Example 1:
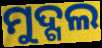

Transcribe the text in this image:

ମୁଦ୍ଗଲ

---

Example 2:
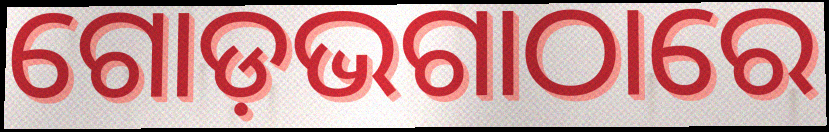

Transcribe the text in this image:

ଗୋଡ଼ଭଗାଠାରେ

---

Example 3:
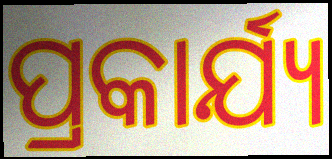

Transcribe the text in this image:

ପ୍ରକାର୍ଯ୍ୟ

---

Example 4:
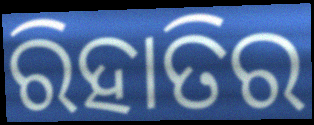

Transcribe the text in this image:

ରିହାତିର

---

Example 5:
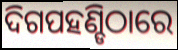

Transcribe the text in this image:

ଦିଗପହଣ୍ଡିଠାରେ